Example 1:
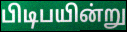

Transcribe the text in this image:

பிடிபயின்று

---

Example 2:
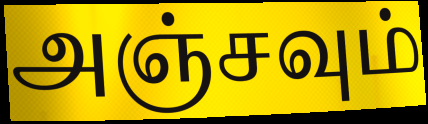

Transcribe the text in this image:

அஞ்சவும்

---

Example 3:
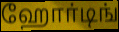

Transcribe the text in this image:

ஹோர்டிங்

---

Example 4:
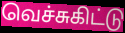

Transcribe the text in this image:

வெச்சுகிட்டு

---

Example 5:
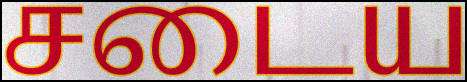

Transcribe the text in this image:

சடைய